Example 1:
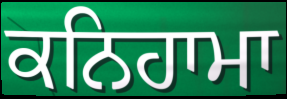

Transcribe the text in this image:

ਕਨਿਹਾਮਾ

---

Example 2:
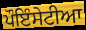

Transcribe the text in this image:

ਪੌਇੰਸੇਟੀਆ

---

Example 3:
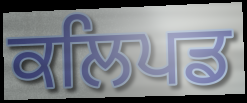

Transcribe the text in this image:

ਕਲਿਪਡ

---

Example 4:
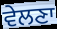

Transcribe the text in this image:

ਵੇਲਣਾ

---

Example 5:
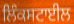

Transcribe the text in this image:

ਲਿੰਕਸਟਾਈਲ